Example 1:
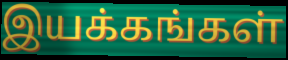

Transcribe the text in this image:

இயக்கங்கள்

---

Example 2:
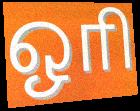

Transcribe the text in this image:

ஒரி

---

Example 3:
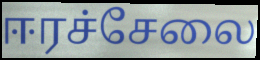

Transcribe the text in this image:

ஈரச்சேலை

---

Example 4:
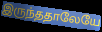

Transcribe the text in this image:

இருந்ததாலேயே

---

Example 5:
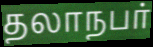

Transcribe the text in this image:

தலாநபர்